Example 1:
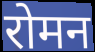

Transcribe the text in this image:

रोमन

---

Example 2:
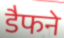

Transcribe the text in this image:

डैफने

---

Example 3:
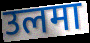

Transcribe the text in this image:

उलमा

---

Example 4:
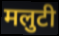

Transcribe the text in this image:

मलुटी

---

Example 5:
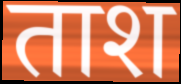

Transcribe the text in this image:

ताश